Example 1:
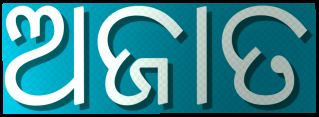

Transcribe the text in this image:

ଅଜାତ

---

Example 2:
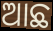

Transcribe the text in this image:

ଆଛ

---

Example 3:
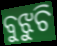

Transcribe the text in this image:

ବୁଝୁଚି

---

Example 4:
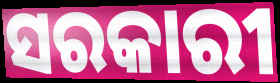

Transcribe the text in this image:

ସରକାରୀ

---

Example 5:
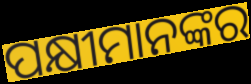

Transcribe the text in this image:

ପକ୍ଷୀମାନଙ୍କର